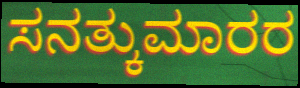
ಸನತ್ಕುಮಾರರ